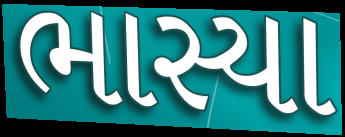
ભાસ્યા